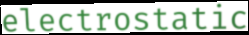
electrostatic